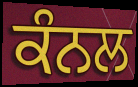
ਕੰਨਲ